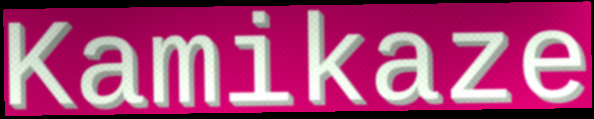
Kamikaze